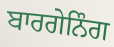
ਬਾਰਗੇਨਿੰਗ